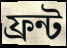
ফ্রন্ট